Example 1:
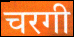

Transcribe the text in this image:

चरगी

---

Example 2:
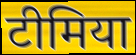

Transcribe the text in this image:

टीमिया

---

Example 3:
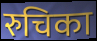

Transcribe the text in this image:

रुचिका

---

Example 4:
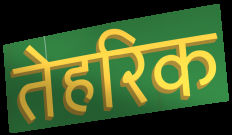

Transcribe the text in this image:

तेहरिक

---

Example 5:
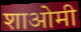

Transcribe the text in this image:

शाओमी